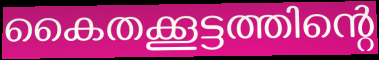
കൈതക്കൂട്ടത്തിന്റെ